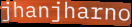
jhanjharno